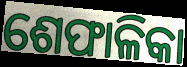
ଶେଫାଳିକା